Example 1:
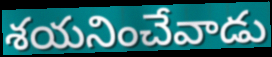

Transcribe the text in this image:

శయనించేవాడు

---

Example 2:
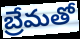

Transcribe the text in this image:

బ్రేమతో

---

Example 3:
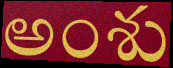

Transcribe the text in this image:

అంశు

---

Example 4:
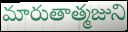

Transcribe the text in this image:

మారుతాత్మజుని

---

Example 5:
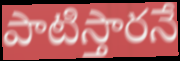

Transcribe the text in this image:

పాటిస్తారనే